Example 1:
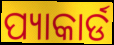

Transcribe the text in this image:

ପ୍ୟାକାର୍ଡ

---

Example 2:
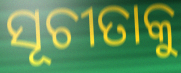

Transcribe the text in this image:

ସୂଚୀତାକୁ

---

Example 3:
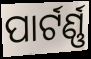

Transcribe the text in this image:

ପାର୍ଟର୍ଣ୍ଣ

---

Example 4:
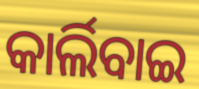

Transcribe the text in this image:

କାର୍ଲିବାଇ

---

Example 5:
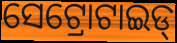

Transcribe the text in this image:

ସେଟ୍ରୋଟାଇଡ୍